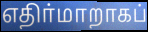
எதிர்மாறாகப்